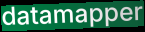
datamapper